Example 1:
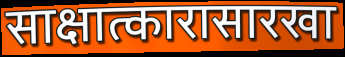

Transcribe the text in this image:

साक्षात्कारासारखा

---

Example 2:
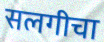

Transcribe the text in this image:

सलगीचा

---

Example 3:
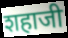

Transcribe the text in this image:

शहाजी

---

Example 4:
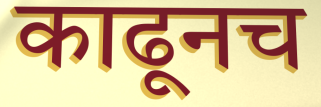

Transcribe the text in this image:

काढूनच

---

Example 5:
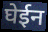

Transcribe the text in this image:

घेईन